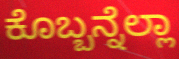
ಕೊಬ್ಬನ್ನೆಲ್ಲಾ